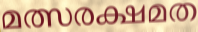
മത്സരക്ഷമത